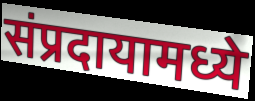
संप्रदायामध्ये